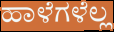
ಹಾಳೆಗಳೆಲ್ಲ